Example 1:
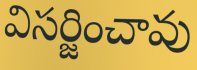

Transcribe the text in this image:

విసర్జించావు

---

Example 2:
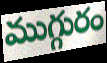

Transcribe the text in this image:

ముగ్గురం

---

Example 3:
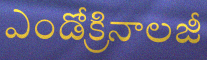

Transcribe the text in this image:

ఎండోక్రినాలజీ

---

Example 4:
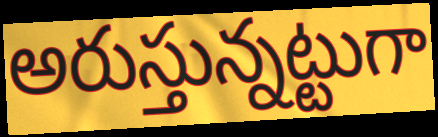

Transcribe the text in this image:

అరుస్తున్నట్టుగా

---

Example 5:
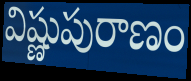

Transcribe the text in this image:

విష్ణుపురాణం